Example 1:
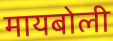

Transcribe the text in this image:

मायबोली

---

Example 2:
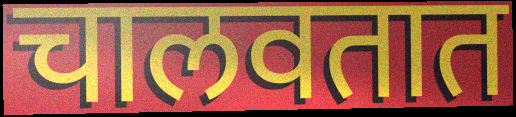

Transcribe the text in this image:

चालवतात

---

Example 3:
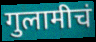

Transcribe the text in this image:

गुलामीचं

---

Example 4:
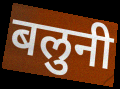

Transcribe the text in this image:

बलुनी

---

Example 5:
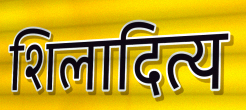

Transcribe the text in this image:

शिलादित्य